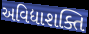
અવિદ્યાશક્તિ